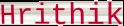
Hrithik